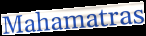
Mahamatras